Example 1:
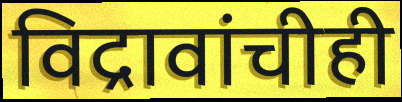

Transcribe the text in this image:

विद्रावांचीही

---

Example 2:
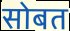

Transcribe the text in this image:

सोबत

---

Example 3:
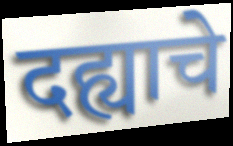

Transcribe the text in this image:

दह्याचे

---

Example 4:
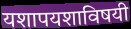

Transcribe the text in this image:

यशापयशाविषयी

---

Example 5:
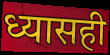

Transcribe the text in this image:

ध्यासही